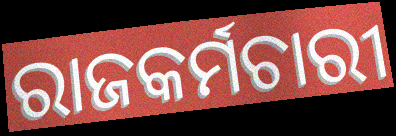
ରାଜକର୍ମଚାରୀ